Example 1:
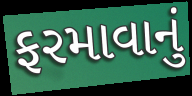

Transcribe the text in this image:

ફરમાવાનું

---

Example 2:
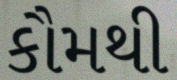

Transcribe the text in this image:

કૌમથી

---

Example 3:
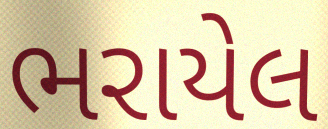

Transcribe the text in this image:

ભરાયેલ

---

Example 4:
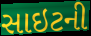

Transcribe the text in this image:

સાઇટની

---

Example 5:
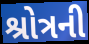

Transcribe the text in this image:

શ્રોત્રની